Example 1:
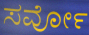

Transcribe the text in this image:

ಸರ್ವೋ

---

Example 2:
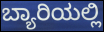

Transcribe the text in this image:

ಬ್ಯಾರಿಯಲ್ಲಿ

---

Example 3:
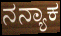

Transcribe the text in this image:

ನನ್ಯಾಕ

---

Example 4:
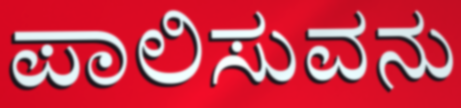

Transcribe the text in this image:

ಪಾಲಿಸುವನು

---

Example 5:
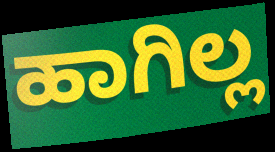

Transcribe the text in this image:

ಹಾಗಿಲ್ಲ